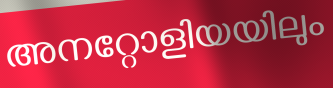
അനറ്റോളിയയിലും